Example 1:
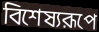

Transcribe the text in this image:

বিশেষ্যরূপে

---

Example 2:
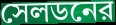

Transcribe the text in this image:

সেলডনের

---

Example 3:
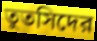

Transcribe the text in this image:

তুতসিদের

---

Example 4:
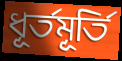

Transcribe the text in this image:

ধূর্তমূর্তি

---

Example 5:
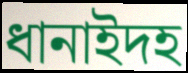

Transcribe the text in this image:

ধানাইদহ